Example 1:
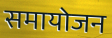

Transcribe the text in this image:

समायोजन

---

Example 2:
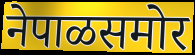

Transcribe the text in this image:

नेपाळसमोर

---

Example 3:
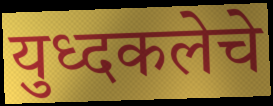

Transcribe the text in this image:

युध्दकलेचे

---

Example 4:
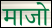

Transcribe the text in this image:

माजो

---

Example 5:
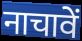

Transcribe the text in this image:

नाचावें